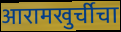
आरामखुर्चीचा